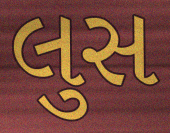
લુસ